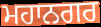
ਮਹਾਨਗਰ